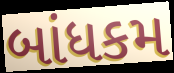
બાંધકમ